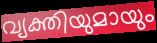
വ്യക്തിയുമായും